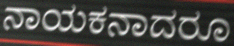
ನಾಯಕನಾದರೂ